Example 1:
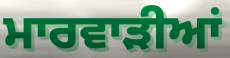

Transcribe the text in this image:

ਮਾਰਵਾੜੀਆਂ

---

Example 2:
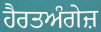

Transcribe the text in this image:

ਹੈਰਤਅੰਗੇਜ਼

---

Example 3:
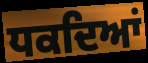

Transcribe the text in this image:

ਧਕਦਿਆਂ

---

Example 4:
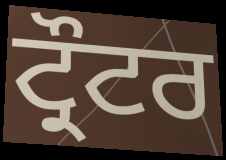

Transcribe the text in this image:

ਟ੍ਰੌਟਰ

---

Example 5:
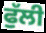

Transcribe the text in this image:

ਫੁੱਲੀ